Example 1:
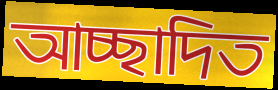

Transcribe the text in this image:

আচ্ছাদিত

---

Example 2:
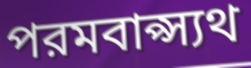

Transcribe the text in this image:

পরমবাপ্স্যথ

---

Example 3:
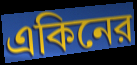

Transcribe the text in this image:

একিনের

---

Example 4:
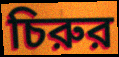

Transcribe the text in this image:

চিরুর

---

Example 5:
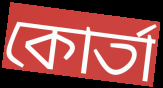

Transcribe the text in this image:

কোর্তা